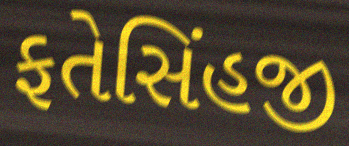
ફતેસિંહજી